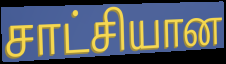
சாட்சியான